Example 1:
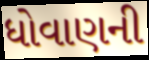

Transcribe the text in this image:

ધોવાણની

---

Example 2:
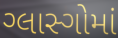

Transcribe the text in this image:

ગ્લાસ્ગોમાં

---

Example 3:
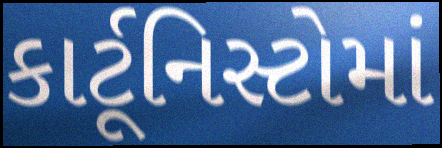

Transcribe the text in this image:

કાર્ટૂનિસ્ટોમાં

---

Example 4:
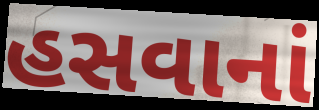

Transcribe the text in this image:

હસવાનાં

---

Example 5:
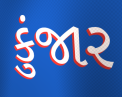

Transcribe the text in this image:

કુંજાર